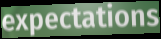
expectations